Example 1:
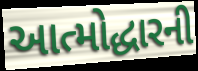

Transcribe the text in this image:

આત્મોદ્ધારની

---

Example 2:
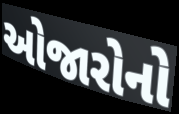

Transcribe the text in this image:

ઓજારોનો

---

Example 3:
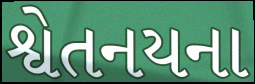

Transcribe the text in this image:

શ્વેતનયના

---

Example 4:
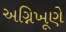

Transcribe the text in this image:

અગ્નિખૂણે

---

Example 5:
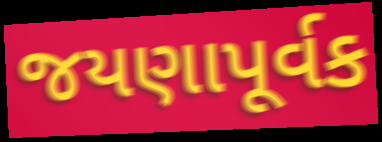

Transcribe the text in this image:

જયણાપૂર્વક